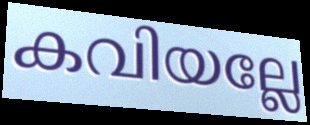
കവിയല്ലേ